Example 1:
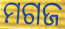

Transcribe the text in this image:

ମଗଜ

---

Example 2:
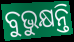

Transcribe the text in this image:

ବୁଭୁକ୍ଷନ୍ତି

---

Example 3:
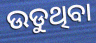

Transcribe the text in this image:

ଉଡୁଥିବା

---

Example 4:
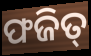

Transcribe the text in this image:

ଫଜିତ୍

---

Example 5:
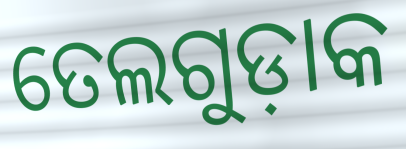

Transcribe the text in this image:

ତେଲଗୁଡ଼ାକ